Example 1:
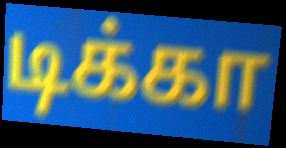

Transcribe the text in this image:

டிக்கா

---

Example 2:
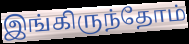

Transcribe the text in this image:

இங்கிருந்தோம்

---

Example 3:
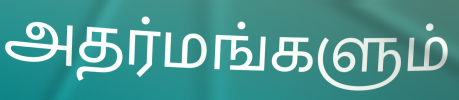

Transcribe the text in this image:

அதர்மங்களும்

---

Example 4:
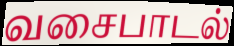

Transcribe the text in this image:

வசைபாடல்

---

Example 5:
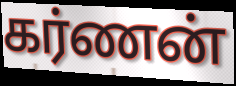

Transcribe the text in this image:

கர்ணன்